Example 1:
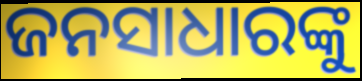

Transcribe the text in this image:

ଜନସାଧାରଙ୍କୁ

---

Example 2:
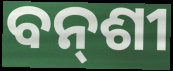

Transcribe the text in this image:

ବନ୍‌ଶୀ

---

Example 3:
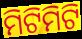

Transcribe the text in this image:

ମିଟିମିଟି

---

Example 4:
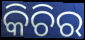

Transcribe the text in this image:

କିଚିର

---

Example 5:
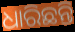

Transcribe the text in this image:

ଧାରିଛନ୍ତି